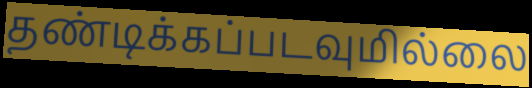
தண்டிக்கப்படவுமில்லை